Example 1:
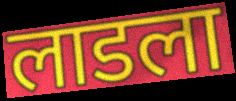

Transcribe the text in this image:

लाडला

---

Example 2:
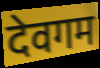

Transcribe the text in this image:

देवगम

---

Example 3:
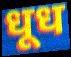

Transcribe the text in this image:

धूध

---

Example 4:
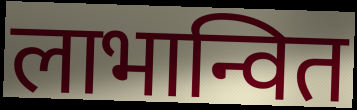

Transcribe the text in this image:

लाभान्वित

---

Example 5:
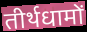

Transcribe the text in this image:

तीर्थधामों